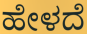
ಹೇಳದೆ